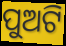
ପୁଅଟି